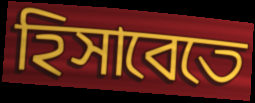
হিসাবেতে